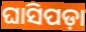
ଘାସିପଡ଼ା